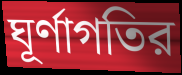
ঘূর্ণাগতির